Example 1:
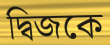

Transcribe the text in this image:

দ্বিজকে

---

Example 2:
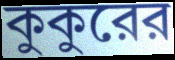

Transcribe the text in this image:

কুকুরের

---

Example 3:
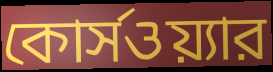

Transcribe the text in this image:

কোর্সওয়্যার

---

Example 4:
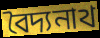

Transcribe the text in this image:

বৈদ্যনাথ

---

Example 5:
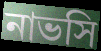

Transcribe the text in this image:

নাভসি